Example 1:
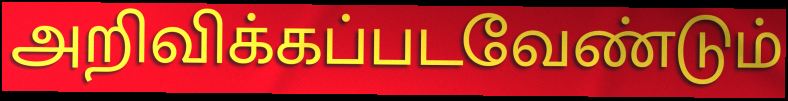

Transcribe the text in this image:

அறிவிக்கப்படவேண்டும்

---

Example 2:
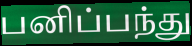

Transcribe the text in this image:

பனிப்பந்து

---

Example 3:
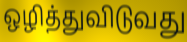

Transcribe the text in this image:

ஒழித்துவிடுவது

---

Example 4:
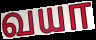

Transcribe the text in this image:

வயா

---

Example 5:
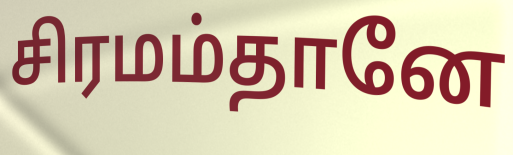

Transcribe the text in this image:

சிரமம்தானே